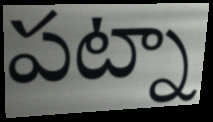
పట్నా